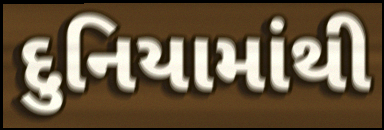
દુનિયામાંથી